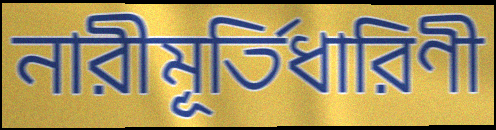
নারীমূর্তিধারিণী